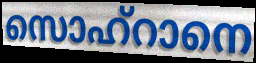
സൊഹ്റാനെ